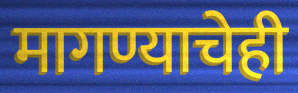
मागण्याचेही